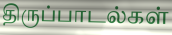
திருப்பாடல்கள்